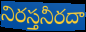
నిరస్తనీరదా